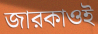
জারকাওই